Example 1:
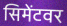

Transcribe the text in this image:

सिमेंटवर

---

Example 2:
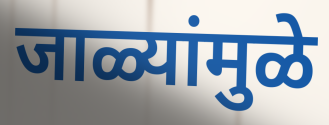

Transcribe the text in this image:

जाळ्यांमुळे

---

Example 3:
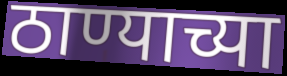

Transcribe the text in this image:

ठाण्याच्या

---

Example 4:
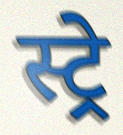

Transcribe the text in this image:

स्ट्रे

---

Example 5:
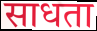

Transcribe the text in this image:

साधता